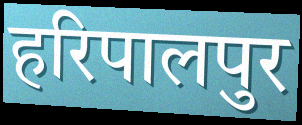
हरिपालपुर